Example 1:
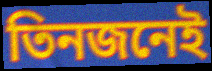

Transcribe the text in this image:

তিনজনেই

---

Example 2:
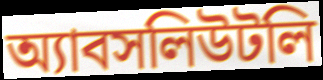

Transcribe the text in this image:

অ্যাবসলিউটলি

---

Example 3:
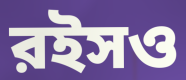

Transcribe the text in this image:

রইসও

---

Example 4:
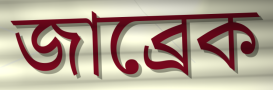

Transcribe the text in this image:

জাব্রেক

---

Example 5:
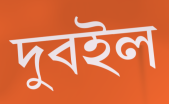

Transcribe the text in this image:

দুবইল